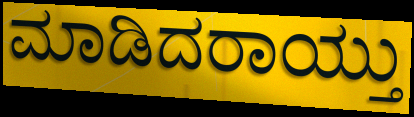
ಮಾಡಿದರಾಯ್ತು